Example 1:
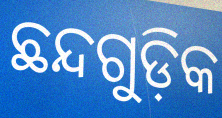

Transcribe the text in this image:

ଛନ୍ଦଗୁଡ଼ିକ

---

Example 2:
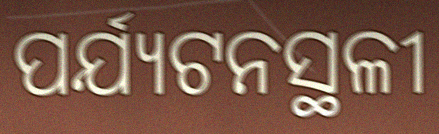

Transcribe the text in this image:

ପର୍ଯ୍ୟଟନସ୍ଥଳୀ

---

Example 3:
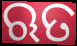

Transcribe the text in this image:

ଋତ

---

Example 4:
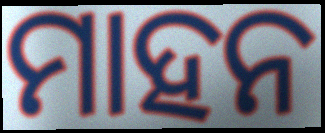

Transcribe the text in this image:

ମାହନ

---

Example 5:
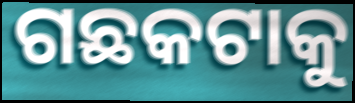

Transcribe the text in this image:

ଗଛକଟାକୁ